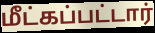
மீட்கப்பட்டார்